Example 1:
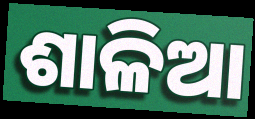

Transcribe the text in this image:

ଶାଳିଆ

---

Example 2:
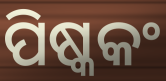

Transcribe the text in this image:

ପିଷ୍କକଂ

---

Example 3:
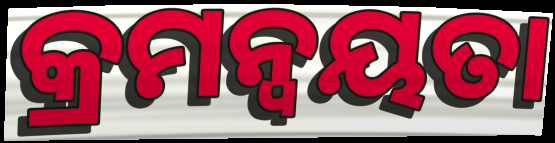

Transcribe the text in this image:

କ୍ରମନ୍ବୟତା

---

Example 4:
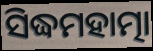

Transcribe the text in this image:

ସିଦ୍ଧମହାତ୍ମା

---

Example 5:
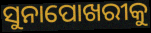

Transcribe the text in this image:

ସୁନାପୋଖରୀକୁ